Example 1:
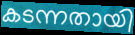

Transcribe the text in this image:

കടന്നതായി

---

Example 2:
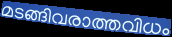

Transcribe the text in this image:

മടങ്ങിവരാത്തവിധം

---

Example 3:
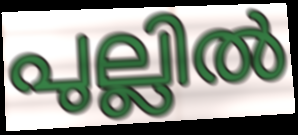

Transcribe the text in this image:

പുല്ലിൽ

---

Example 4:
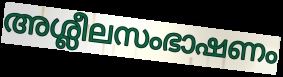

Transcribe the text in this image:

അശ്ലീലസംഭാഷണം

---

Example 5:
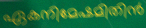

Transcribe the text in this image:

ഏകനിമേഷമിതിൻ